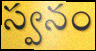
స్వనం